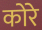
कोरे